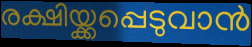
രക്ഷിയ്ക്കപ്പെടുവാൻ